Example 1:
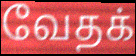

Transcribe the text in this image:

வேதக்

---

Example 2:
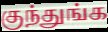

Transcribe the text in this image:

குந்துங்க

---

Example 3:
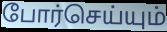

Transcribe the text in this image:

போர்செய்யும்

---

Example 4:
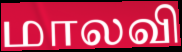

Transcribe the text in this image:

மாலவி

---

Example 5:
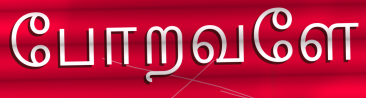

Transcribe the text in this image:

போறவளே